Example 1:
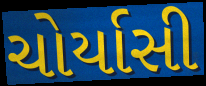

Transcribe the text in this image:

ચોર્યાસી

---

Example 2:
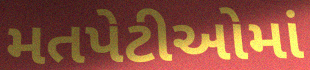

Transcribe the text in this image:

મતપેટીઓમાં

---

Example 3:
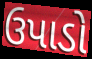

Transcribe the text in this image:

ઉપાડો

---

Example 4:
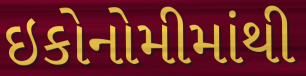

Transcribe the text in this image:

ઇકોનોમીમાંથી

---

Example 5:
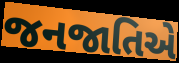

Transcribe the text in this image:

જનજાતિએ